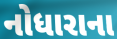
નોધારાના